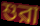
শুরা